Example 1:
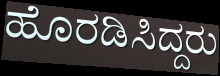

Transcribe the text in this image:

ಹೊರಡಿಸಿದ್ದರು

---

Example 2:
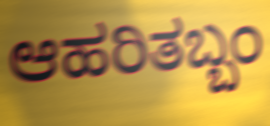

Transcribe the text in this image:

ಆಹರಿತಬ್ಬಂ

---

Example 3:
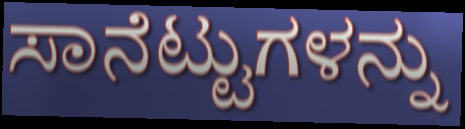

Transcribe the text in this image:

ಸಾನೆಟ್ಟುಗಳನ್ನು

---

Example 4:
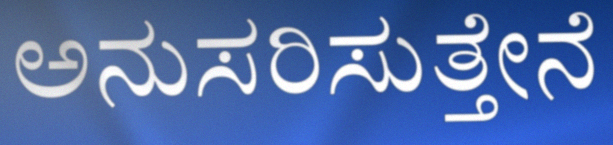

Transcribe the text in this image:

ಅನುಸರಿಸುತ್ತೇನೆ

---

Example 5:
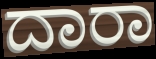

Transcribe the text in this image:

ದಾರಾ